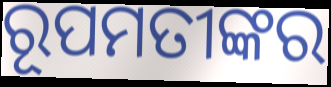
ରୂପମତୀଙ୍କର